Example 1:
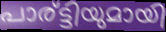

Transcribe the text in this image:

പാര്ട്ടിയുമായി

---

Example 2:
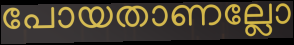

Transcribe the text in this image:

പോയതാണല്ലോ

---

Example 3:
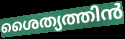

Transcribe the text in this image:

ശൈത്യത്തിൻ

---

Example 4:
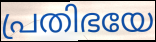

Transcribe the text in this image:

പ്രതിഭയേ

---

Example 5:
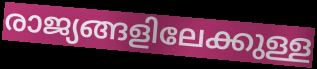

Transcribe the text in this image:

രാജ്യങ്ങളിലേക്കുള്ള